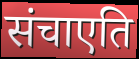
संचाएति